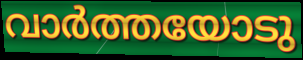
വാർത്തയോടു